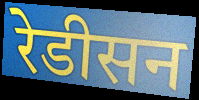
रेडीसन